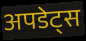
अपडेट्स